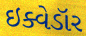
ઇક્વેડૉર